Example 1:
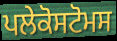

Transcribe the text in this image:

ਪਲੇਕੋਸਟੋਮਸ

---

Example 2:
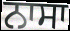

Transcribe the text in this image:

ਨਾਸਾ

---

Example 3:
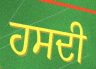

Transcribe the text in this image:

ਹਸਦੀ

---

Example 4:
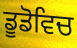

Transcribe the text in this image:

ਡੂਡੋਵਿਚ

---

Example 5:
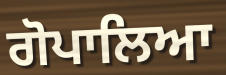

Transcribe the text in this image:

ਗੋਪਾਲਿਆ